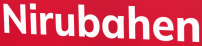
Nirubahen